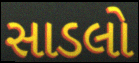
સાડલો